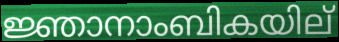
ജ്ഞാനാംബികയില്